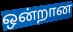
ஒன்றான